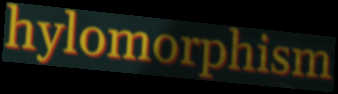
hylomorphism